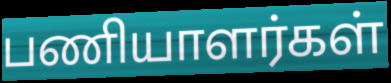
பணியாளர்கள்